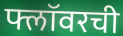
फ्लॉवरची